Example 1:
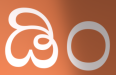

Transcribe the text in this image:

ಡಿಂ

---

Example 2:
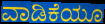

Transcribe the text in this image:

ವಾಡಿಕೆಯೂ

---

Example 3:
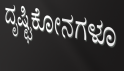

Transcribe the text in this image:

ದೃಷ್ಟಿಕೋನಗಳೂ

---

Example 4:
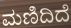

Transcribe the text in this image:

ಮಣಿದಿದೆ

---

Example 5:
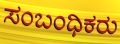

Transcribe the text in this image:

ಸಂಬಂಧಿಕರು